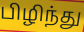
பிழிந்து